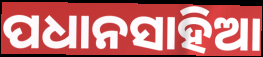
ପଧାନସାହିଆ